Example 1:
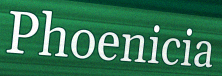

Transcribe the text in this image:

Phoenicia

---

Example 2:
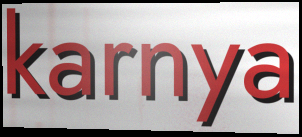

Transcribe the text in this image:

karnya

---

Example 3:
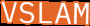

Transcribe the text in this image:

VSLAM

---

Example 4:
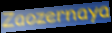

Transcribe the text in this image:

Zaozernaya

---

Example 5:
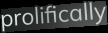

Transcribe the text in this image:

prolifically